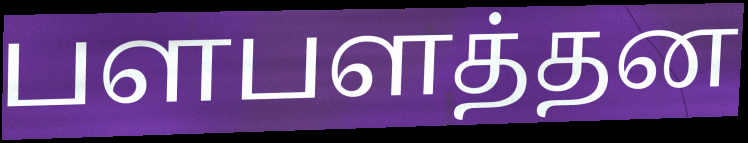
பளபளத்தன